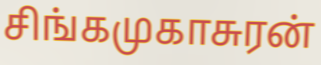
சிங்கமுகாசுரன்